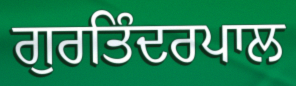
ਗੁਰਤਿੰਦਰਪਾਲ